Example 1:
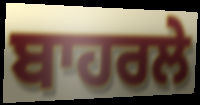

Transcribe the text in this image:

ਬਾਹਰਲੇ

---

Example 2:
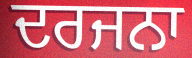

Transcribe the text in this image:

ਦਰਜਨਾ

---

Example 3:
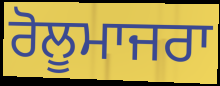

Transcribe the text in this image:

ਰੋਲੂਮਾਜਰਾ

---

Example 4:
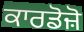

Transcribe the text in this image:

ਕਾਰਡੋਜ਼ੋ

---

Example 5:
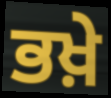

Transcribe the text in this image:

ਭਖ਼ੇ